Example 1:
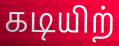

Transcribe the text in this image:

கடியிற்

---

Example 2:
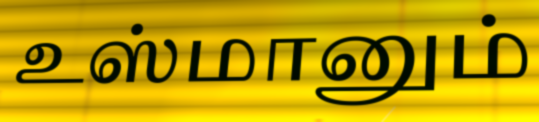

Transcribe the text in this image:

உஸ்மானும்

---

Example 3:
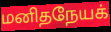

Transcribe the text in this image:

மனிதநேயக்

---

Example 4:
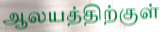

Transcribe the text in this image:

ஆலயத்திற்குள்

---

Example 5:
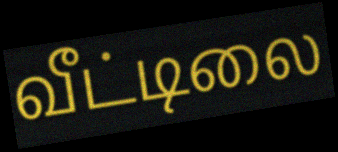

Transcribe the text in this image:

வீட்டிலை